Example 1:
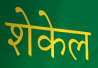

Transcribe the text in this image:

शेकेल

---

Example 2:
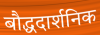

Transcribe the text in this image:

बौद्धदार्शनिक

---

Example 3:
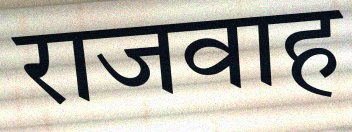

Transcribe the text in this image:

राजवाह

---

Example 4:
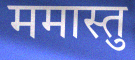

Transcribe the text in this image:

ममास्तु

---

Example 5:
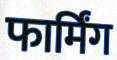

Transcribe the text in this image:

फार्मिंग